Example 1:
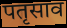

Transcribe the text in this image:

पतृसाव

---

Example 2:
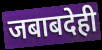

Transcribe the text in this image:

जबाबदेही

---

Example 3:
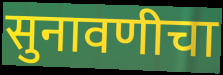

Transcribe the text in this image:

सुनावणीचा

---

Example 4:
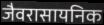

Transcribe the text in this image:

जैवरासायनिक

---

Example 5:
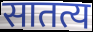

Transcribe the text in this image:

सातत्य